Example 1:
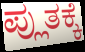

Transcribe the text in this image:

ಪ್ಲುತಕ್ಕೆ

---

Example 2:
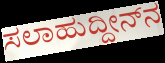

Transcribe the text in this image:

ಸಲಾಹುದ್ದೀನ್‍ನ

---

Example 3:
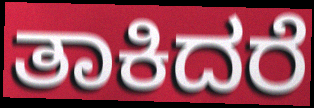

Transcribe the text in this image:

ತಾಕಿದರೆ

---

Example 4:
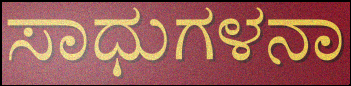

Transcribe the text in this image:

ಸಾಧುಗಳನಾ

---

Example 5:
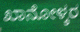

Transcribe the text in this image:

ಖಾನೋಳ್ಕರ